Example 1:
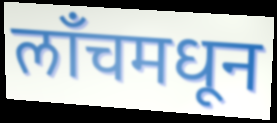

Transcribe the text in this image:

लॉंचमधून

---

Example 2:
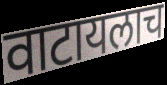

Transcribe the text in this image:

वाटायलाच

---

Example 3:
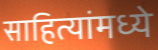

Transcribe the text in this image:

साहित्यांमध्ये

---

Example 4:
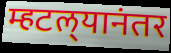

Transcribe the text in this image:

म्हटल्यानंतर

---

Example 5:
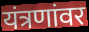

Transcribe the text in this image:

यंत्रणांवर